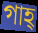
গাহ্